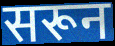
सरून